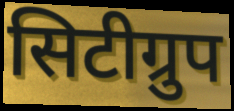
सिटीग्रुप